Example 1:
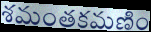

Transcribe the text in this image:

శమంతకమణిం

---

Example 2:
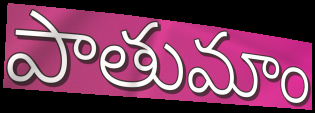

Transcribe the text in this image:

పాతుమాం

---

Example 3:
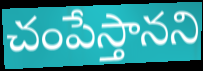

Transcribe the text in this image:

చంపేస్తానని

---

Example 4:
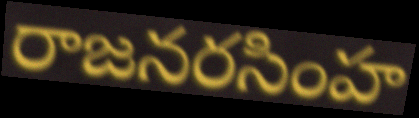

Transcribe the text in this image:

రాజనరసింహ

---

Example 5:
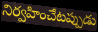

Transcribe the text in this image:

నిర్వహించేటప్పుడు